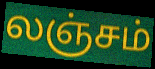
லஞ்சம்